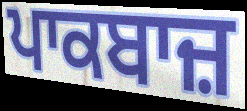
ਪਾਕਬਾਜ਼